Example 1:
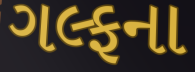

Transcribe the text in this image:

ગલ્ફના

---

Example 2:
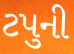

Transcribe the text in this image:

ટપુની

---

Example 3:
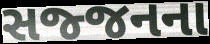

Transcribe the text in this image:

સજ્જનના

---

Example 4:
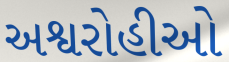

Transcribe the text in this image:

અશ્વરોહીઓ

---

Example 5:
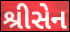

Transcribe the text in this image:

શ્રીસેન